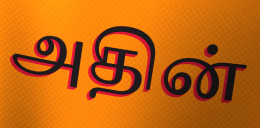
அதின்